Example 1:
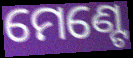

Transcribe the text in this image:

ମେଣ୍ଟେ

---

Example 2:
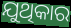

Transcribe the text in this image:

ଯୁଥିକାର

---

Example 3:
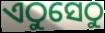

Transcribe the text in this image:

ଏଠୁସେଠୁ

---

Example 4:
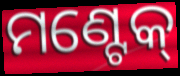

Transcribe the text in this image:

ମଣ୍ଟେକ୍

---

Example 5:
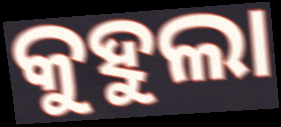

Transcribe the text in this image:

କୁହୁଲା